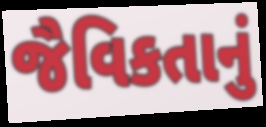
જૈવિકતાનું